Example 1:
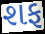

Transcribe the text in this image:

શફ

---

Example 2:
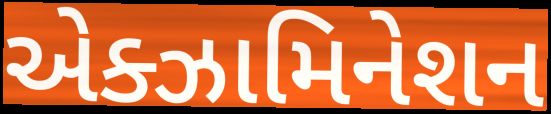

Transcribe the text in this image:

એક્ઝામિનેશન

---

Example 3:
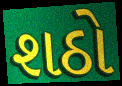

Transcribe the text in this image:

શઠો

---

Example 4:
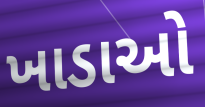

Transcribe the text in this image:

ખાડાઓ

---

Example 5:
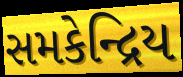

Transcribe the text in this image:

સમકેન્દ્રિય